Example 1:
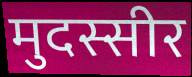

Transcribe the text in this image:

मुदस्सीर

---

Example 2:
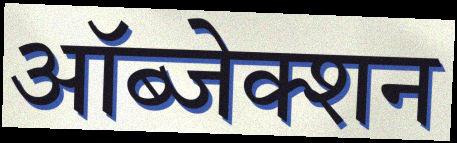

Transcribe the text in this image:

ऑब्जेक्शन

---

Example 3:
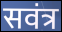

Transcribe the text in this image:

सवंत्र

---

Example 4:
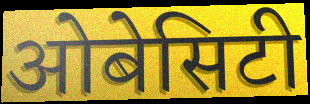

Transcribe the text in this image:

ओबेसिटी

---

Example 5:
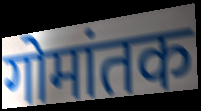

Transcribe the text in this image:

गोमांतक